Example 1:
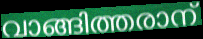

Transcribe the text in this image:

വാങ്ങിത്തരാന്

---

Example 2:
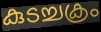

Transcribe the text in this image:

കുടച്ചക്രം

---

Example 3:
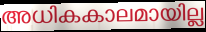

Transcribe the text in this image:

അധികകാലമായില്ല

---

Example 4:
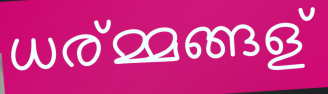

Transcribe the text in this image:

ധര്മ്മങ്ങള്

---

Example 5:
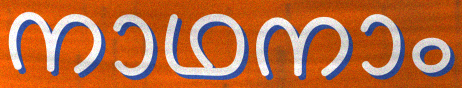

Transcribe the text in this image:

നാഥനാം